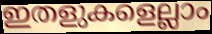
ഇതളുകളെല്ലാം